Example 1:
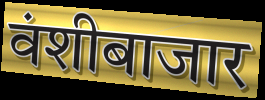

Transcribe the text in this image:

वंशीबाजार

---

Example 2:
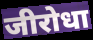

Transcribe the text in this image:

जीरोधा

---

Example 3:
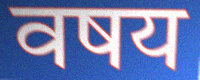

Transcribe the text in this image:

वषय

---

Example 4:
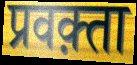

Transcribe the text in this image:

प्रवक़्ता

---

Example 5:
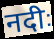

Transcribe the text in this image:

नदीः